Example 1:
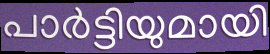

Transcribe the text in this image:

പാർട്ടിയുമായി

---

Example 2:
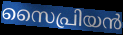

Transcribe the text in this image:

സൈപ്രിയൻ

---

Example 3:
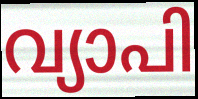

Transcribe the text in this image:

വ്യാപി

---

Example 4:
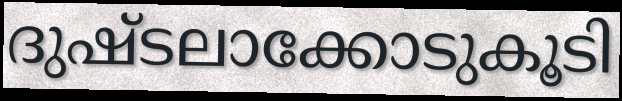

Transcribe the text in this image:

ദുഷ്ടലാക്കോടുകൂടി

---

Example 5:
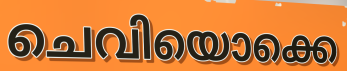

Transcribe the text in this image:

ചെവിയൊക്കെ